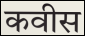
कवीस